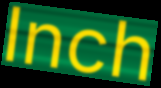
Inch